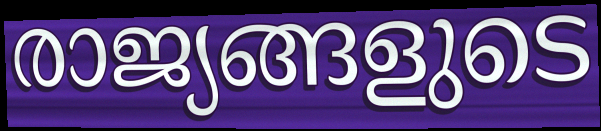
രാജ്യങ്ങളുടെ